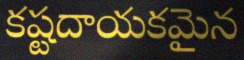
కష్టదాయకమైన